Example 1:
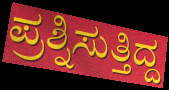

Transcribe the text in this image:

ಪ್ರಶ್ನಿಸುತ್ತಿದ್ದ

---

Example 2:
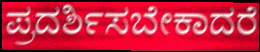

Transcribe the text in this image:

ಪ್ರದರ್ಶಿಸಬೇಕಾದರೆ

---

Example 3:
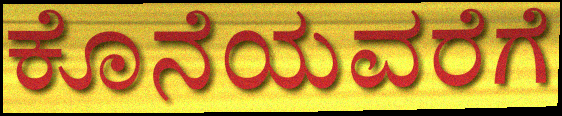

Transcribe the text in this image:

ಕೊನೆಯವರೆಗೆ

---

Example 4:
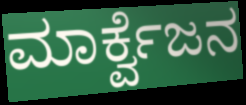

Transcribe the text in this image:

ಮಾರ್ಕ್ವೆಜನ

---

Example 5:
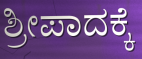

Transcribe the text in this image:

ಶ್ರೀಪಾದಕ್ಕೆ